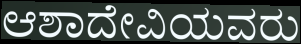
ಆಶಾದೇವಿಯವರು